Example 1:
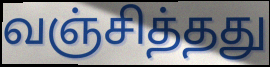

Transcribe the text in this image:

வஞ்சித்தது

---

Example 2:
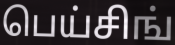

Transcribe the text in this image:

பெய்சிங்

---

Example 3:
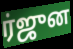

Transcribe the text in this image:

ர்ஜுன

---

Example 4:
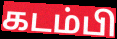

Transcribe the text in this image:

கடம்பி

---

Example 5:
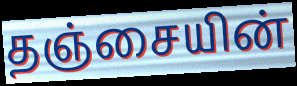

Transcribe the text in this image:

தஞ்சையின்